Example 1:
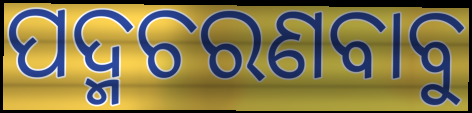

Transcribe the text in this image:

ପଦ୍ମଚରଣବାବୁ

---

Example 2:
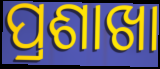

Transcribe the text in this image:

ପ୍ରଶାଖା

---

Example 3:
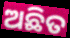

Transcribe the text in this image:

ଅଛିତ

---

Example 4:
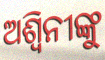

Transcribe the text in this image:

ଅଶ୍ୱିନୀଙ୍କୁ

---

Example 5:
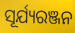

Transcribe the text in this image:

ସୂର୍ଯ୍ୟରଞ୍ଜନ